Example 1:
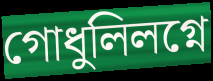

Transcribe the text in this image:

গোধুলিলগ্নে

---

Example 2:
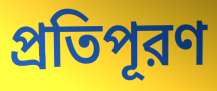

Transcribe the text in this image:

প্রতিপূরণ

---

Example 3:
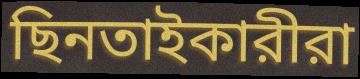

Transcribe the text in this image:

ছিনতাইকারীরা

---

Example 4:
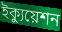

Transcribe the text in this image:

ইক্যুয়েশন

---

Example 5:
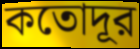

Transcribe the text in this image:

কতোদূর